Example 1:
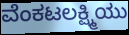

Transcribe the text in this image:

ವೆಂಕಟಲಕ್ಷ್ಮಿಯು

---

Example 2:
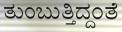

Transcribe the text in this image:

ತುಂಬುತ್ತಿದ್ದಂತೆ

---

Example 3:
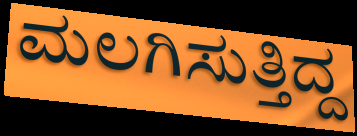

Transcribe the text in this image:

ಮಲಗಿಸುತ್ತಿದ್ದ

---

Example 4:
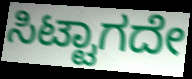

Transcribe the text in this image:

ಸಿಟ್ಟಾಗದೇ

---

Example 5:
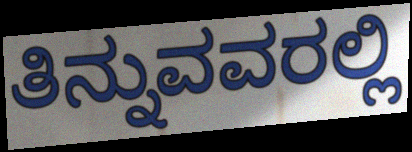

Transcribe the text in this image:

ತಿನ್ನುವವರಲ್ಲಿ